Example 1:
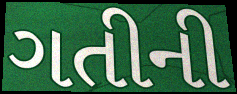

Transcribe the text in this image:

ગતીની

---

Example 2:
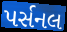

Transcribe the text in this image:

પર્સનલ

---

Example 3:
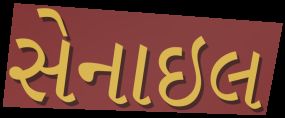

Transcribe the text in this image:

સેનાઇલ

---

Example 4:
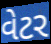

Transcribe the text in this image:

વેટર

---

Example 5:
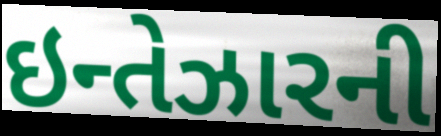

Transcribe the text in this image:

ઇન્તેઝારની